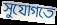
সুযোগতে